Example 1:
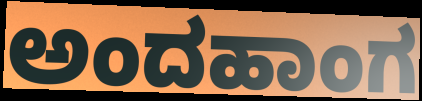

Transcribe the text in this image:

ಅಂದಹಾಂಗ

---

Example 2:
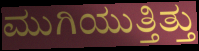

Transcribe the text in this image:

ಮುಗಿಯುತ್ತಿತ್ತು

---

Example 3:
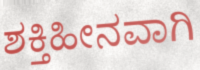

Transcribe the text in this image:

ಶಕ್ತಿಹೀನವಾಗಿ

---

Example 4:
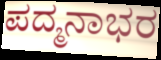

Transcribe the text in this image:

ಪದ್ಮನಾಭರ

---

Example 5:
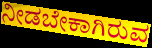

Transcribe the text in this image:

ನೀಡಬೇಕಾಗಿರುವ